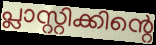
പ്ലാസ്റ്റിക്കിന്റെ